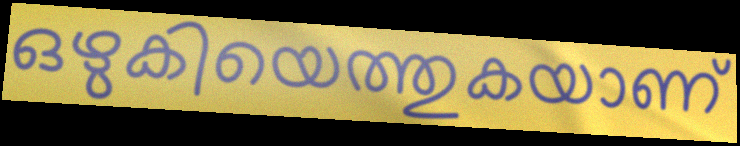
ഒഴുകിയെത്തുകയാണ്